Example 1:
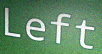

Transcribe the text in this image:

Left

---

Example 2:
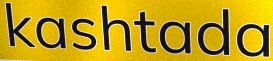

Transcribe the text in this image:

kashtada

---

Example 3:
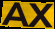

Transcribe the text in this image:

AX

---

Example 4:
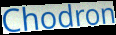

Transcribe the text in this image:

Chodron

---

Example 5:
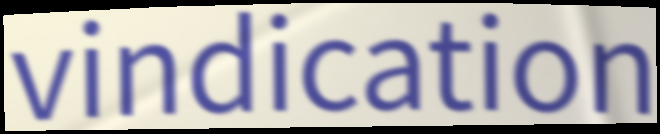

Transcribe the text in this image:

vindication